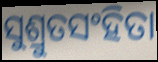
ସୁଶ୍ରୁତସଂହିତା